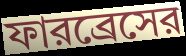
ফারব্রেসের